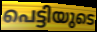
പെട്ടിയുടെ